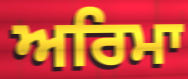
ਅਰਿਮਾ